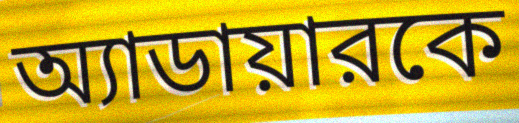
অ্যাডায়ারকে